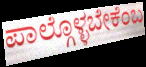
ಪಾಲ್ಗೊಳ್ಳಬೇಕೆಂಬ